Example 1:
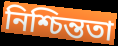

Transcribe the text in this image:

নিশ্চিন্ততা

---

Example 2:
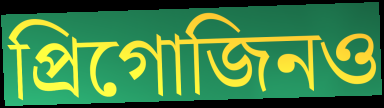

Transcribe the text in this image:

প্রিগোজিনও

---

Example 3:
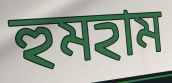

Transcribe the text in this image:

হুমহাম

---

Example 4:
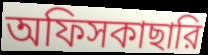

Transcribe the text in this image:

অফিসকাছারি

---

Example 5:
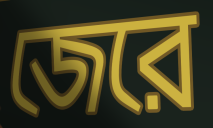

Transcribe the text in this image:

জেরে